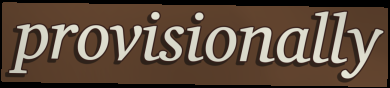
provisionally